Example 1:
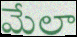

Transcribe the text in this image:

మేలా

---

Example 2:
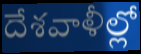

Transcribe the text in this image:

దేశవాళీల్లో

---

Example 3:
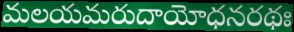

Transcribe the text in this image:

మలయమరుదాయోధనరథః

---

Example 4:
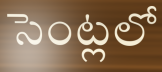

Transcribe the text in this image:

సెంట్లలో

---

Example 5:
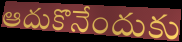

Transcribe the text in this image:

ఆదుకొనేందుకు